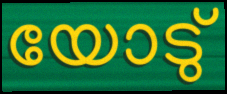
യോടു്